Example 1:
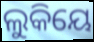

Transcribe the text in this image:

ଲୁକିୟେ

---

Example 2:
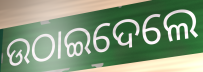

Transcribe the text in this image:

ଉଠାଇଦେଲେ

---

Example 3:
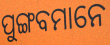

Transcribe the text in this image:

ପୁଙ୍ଗବମାନେ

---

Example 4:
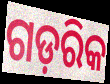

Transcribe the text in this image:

ଗଡ଼ରିକ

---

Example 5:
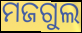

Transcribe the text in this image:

ମଜଗୁଲ